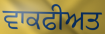
ਵਾਕਫੀਅਤ